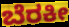
ಬೆರಕೀ